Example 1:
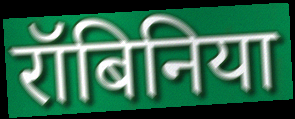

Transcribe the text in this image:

रॉबिनिया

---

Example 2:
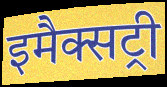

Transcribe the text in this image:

इमैक्सट्री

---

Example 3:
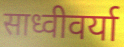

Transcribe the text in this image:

साध्वीवर्या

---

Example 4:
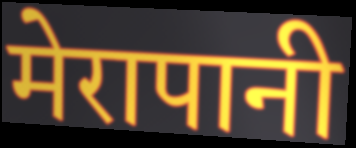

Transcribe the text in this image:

मेरापानी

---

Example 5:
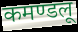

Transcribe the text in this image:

कमण्डलू